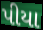
પીયા